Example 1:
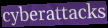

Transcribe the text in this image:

cyberattacks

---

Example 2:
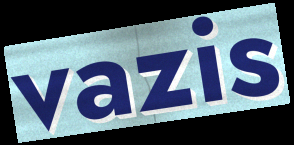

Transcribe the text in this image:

vazis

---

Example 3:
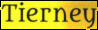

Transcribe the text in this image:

Tierney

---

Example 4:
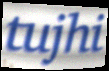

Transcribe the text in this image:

tujhi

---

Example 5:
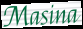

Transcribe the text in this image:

Masina